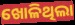
ଖୋଳିଥିଲା